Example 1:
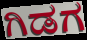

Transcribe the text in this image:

ಗಿಡಗ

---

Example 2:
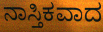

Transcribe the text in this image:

ನಾಸ್ತಿಕವಾದ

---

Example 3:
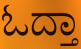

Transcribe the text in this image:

ಓದ್ತಾ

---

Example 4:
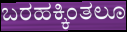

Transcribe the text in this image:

ಬರಹಕ್ಕಿಂತಲೂ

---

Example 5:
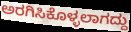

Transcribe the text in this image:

ಅರಗಿಸಿಕೊಳ್ಳಲಾಗದ್ದು